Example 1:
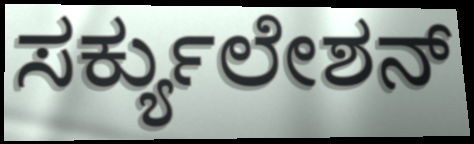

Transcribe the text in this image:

ಸರ್ಕ್ಯುಲೇಶನ್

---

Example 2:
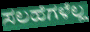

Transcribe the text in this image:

ಸಲಹೆಗಳೆಲ್ಲ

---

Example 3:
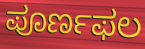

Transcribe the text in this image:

ಪೂರ್ಣಫಲ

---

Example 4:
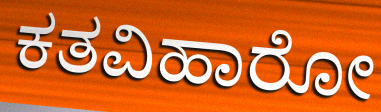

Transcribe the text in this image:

ಕತವಿಹಾರೋ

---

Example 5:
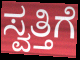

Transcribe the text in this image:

ಸ್ವತ್ತಿಗೆ